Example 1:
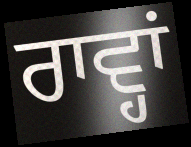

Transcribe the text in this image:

ਰਾਵ੍ਹਾਂ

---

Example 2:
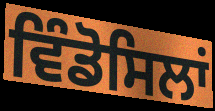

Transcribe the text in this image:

ਵਿੰਡੋਸਿਲਾਂ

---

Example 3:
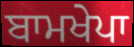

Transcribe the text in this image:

ਬਾਮਖੇਪਾ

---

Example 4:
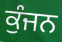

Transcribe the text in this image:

ਕੁੰਜਨ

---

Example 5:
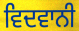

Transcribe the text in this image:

ਵਿਦਵਾਨੀ